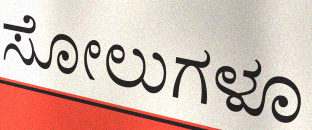
ಸೋಲುಗಳೂ